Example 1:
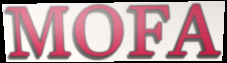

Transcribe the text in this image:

MOFA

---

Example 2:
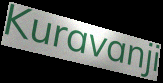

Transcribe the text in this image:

Kuravanji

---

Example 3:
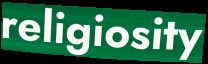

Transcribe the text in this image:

religiosity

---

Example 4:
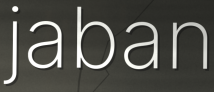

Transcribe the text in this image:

jaban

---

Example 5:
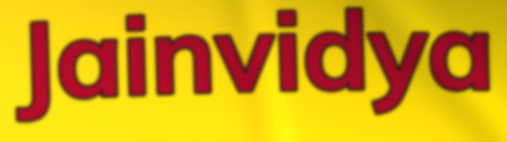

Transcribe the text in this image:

Jainvidya